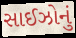
સાઈઝોનું